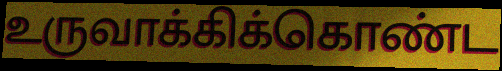
உருவாக்கிக்கொண்ட